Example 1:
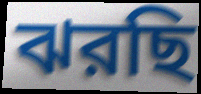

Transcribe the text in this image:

ঝরছি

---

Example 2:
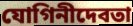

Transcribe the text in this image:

যোগিনীদেবতা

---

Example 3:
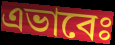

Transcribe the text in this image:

এভাবেঃ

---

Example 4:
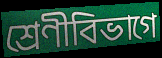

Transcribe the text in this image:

শ্রেণীবিভাগে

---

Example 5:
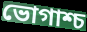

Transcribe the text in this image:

ভোগাশ্চ